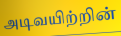
அடிவயிற்றின்